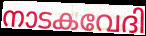
നാടകവേദി